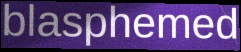
blasphemed